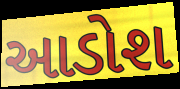
આડોશ